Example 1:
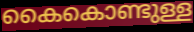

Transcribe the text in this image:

കൈകൊണ്ടുള്ള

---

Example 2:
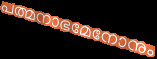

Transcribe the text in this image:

പത്മനാഭമേനോനും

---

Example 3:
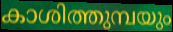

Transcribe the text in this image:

കാശിത്തുമ്പയും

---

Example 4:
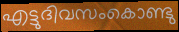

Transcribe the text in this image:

എട്ടുദിവസംകൊണ്ടു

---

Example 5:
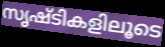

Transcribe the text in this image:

സൃഷ്ടികളിലൂടെ